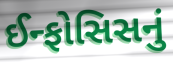
ઈન્ફોસિસનું